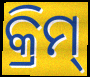
କ୍ରିମ୍